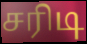
சரிடி